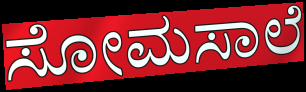
ಸೋಮಸಾಲೆ